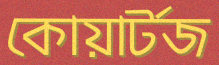
কোয়ার্টজ